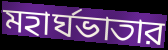
মহার্ঘভাতার